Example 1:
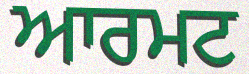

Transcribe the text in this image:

ਆਰਮਟ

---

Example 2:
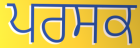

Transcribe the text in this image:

ਪਰਸਕ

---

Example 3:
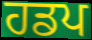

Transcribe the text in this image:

ਹਡਪ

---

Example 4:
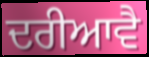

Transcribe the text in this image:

ਦਰੀਆਵੈ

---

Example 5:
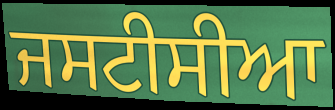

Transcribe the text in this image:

ਜਸਟੀਸੀਆ